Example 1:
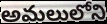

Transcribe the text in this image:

అమలులోని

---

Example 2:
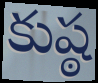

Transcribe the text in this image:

కుష్ఠ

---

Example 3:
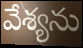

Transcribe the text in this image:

వేశ్యను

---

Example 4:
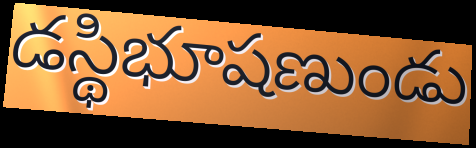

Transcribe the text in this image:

డస్థిభూషణుండు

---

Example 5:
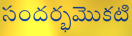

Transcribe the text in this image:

సందర్భమొకటి